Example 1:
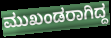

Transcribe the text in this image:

ಮುಖಂಡರಾಗಿದ್ದ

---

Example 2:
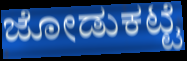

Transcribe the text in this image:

ಜೋಡುಕಟ್ಟೆ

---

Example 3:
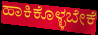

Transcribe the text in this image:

ಹಾಕಿಕೊಳ್ಳಬೇಕೆ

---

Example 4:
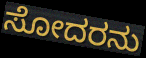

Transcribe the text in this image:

ಸೋದರನು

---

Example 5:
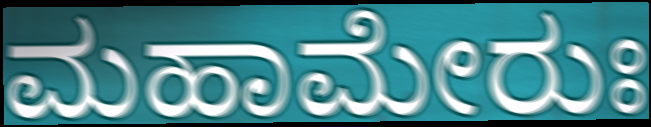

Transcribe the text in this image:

ಮಹಾಮೇರುಃ